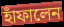
হাঁফালেন